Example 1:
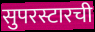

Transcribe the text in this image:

सुपरस्टारची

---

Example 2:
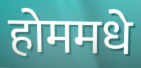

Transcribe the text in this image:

होममधे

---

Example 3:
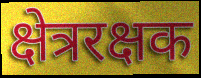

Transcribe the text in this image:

क्षेत्ररक्षक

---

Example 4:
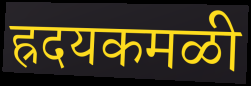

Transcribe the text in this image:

ह्रदयकमळी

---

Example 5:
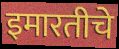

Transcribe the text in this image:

इमारतीचे